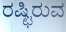
ರಷ್ಟಿರುವ